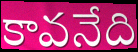
కావనేది